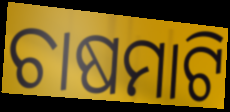
ଚାଷମାଟି